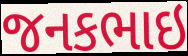
જનકભાઇ